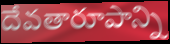
దేవతారూపాన్ని